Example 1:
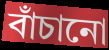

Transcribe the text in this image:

বাঁচানো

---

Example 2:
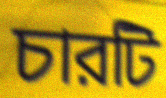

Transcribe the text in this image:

চারটি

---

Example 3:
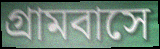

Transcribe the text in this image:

গ্রামবাসে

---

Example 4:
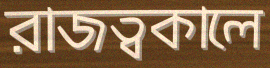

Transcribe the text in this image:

রাজত্বকালে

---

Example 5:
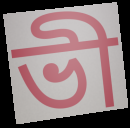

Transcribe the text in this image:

ভী